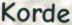
Korde